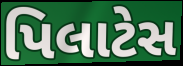
પિલાટેસ